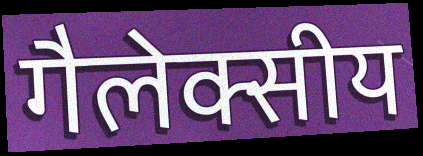
गैलेक्सीय